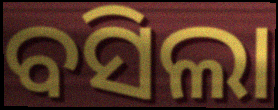
ବସିଲା